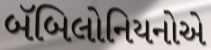
બૅબિલોનિયનોએ